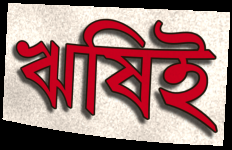
ঋষিই